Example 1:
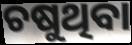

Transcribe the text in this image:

ଚଷୁଥିବା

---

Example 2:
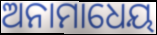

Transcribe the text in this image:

ଅନାମାଧେୟ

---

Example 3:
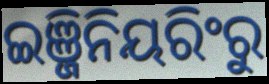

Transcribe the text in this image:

ଇଞ୍ଜିନିୟରିଂରୁ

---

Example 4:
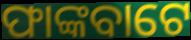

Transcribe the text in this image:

ଫାଙ୍କବାଟେ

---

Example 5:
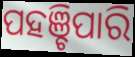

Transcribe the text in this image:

ପହଞ୍ଚିପାରି